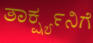
ತಾರ್ಕ್ಷ್ಯನಿಗೆ